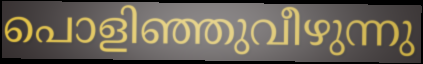
പൊളിഞ്ഞുവീഴുന്നു